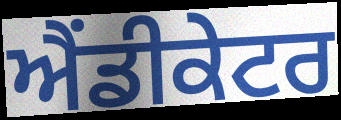
ਐਂਡੀਕੇਟਰ